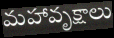
మహావృక్షాలు